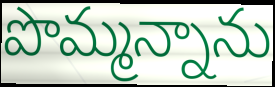
పొమ్మన్నాను